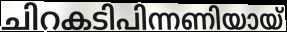
ചിറകടിപിന്നണിയായ്